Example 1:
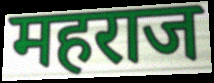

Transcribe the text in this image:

महराज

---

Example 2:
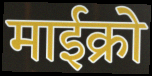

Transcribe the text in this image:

माईक्रो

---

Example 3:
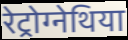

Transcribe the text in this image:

रेट्रोग्नेथिया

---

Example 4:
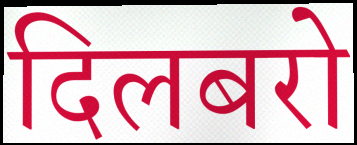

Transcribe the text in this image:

दिलबरो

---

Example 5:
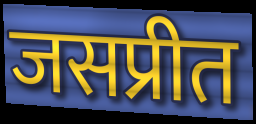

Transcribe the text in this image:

जसप्रीत